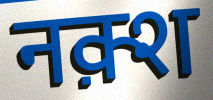
नक़्श